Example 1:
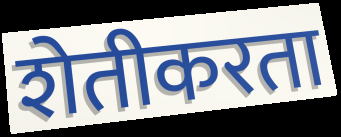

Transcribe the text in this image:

शेतीकरता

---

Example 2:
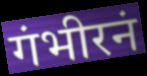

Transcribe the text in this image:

गंभीरनं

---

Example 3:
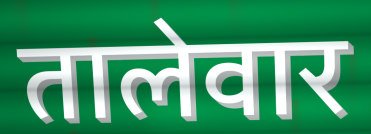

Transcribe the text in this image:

तालेवार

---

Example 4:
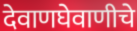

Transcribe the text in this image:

देवाणघेवाणीचे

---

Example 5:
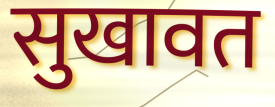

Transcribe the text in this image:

सुखावत